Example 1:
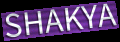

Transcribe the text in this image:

SHAKYA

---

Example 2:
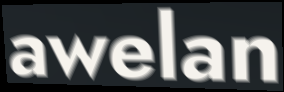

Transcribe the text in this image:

awelan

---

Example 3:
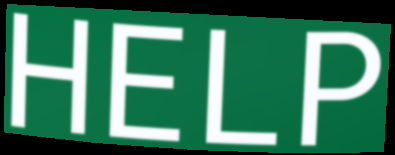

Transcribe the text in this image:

HELP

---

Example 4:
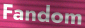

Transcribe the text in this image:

Fandom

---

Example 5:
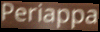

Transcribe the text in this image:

Periappa